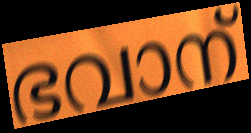
ഭവാന്